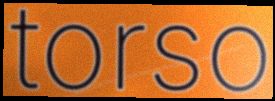
torso